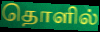
தொளில்